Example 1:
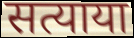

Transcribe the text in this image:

सत्याया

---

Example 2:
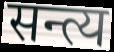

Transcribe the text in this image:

सन्त्य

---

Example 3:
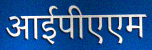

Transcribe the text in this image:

आईपीएएम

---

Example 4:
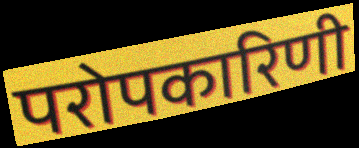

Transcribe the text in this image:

परोपकारिणी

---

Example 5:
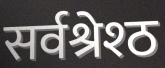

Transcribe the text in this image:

सर्वश्रेश्ठ